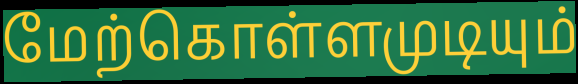
மேற்கொள்ளமுடியும்